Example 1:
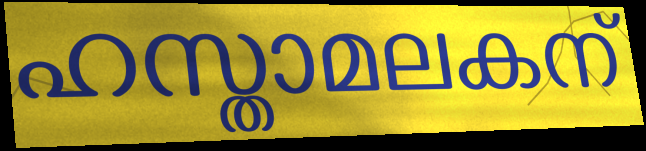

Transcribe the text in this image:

ഹസ്താമലകന്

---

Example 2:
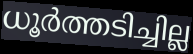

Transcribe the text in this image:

ധൂർത്തടിച്ചില്ല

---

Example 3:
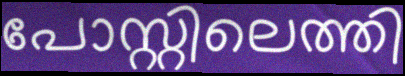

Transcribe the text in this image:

പോസ്റ്റിലെത്തി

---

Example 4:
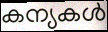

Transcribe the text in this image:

കന്യകൾ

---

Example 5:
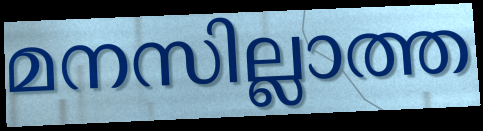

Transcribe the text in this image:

മനസില്ലാത്ത